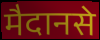
मैदानसे